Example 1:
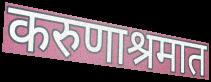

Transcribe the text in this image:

करुणाश्रमात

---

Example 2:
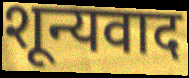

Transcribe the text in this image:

शून्यवाद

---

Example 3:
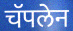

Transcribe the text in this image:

चॅपलेन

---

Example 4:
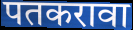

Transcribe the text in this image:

पतकरावा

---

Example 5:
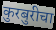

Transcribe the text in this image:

कुरबुरीचा